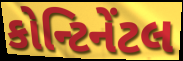
કોન્ટિનેંટલ